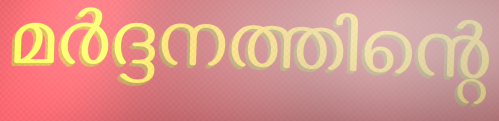
മർദ്ദനത്തിന്റെ